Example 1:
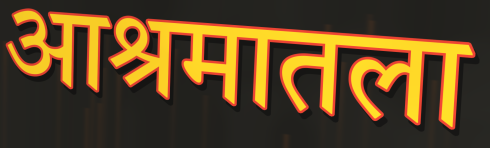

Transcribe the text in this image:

आश्रमातला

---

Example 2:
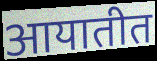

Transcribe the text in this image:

आयातीत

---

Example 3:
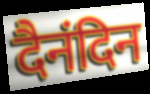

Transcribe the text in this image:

दैनंदिन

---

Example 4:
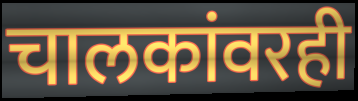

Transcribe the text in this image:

चालकांवरही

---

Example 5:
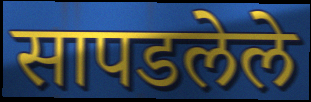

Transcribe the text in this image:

सापडलेले